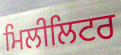
ਮਿਲੀਲਿਟਰ